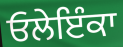
ਓਲੇਇੰਕਾ